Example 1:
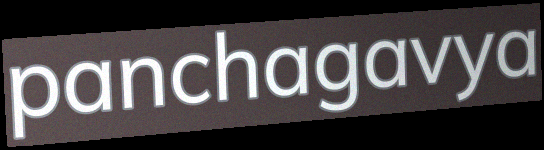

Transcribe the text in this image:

panchagavya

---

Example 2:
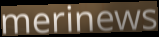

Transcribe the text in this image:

merinews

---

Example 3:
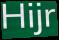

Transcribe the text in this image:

Hijr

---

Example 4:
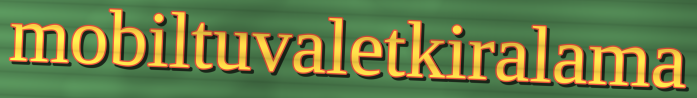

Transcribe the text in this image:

mobiltuvaletkiralama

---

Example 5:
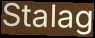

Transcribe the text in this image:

Stalag